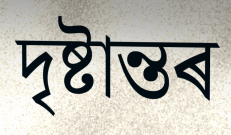
দৃষ্টান্তৰ